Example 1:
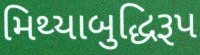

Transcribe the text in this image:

મિથ્યાબુદ્ધિરૂપ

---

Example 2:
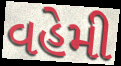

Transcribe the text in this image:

વહેમી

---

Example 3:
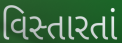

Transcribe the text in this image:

વિસ્તારતાં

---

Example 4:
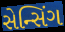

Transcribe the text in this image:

સેન્સિંગ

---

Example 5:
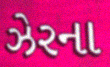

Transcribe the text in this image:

ઝેરના